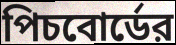
পিচবোর্ডের